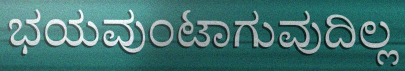
ಭಯವುಂಟಾಗುವುದಿಲ್ಲ